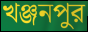
খঞ্জনপুর